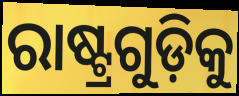
ରାଷ୍ଟ୍ରଗୁଡ଼ିକୁ